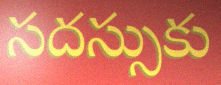
సదస్సుకు